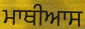
ਮਾਥੀਆਸ